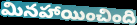
మినహాయించింది